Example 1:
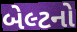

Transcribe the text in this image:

બેલ્ટનો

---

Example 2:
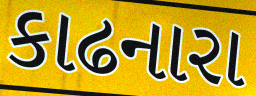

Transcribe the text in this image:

કાઢનારા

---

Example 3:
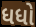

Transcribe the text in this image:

ધધો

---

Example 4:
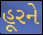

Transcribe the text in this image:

હૂરને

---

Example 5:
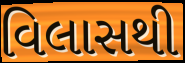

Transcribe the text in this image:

વિલાસથી